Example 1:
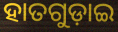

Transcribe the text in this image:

ହାତଗୁଡ଼ାଇ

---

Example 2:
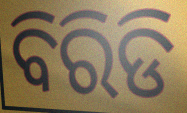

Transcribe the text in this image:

ବିରିଡି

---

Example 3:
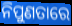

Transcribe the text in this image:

ନିପୁଣତାରେ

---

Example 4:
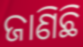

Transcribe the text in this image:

ଜାଣିଛି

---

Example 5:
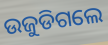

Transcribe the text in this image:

ଉଜୁଡିଗଲେ